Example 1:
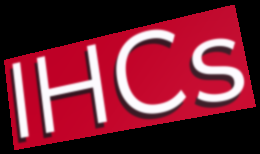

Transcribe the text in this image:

IHCs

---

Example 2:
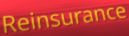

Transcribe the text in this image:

Reinsurance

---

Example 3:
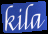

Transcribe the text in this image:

kila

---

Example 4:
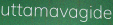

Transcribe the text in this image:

uttamavagide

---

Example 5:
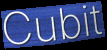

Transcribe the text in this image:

Cubit